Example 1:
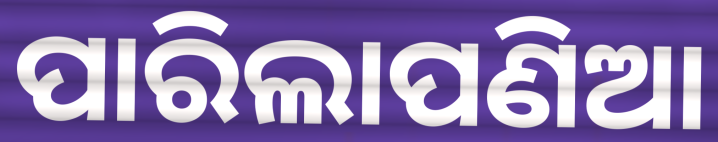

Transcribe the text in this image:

ପାରିଲାପଣିଆ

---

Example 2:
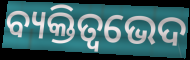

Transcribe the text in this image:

ବ୍ୟକ୍ତିତ୍ୱଭେଦ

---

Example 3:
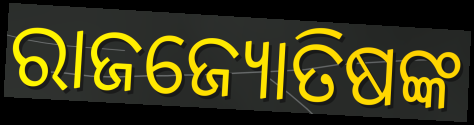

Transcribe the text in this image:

ରାଜଜ୍ୟୋତିଷଙ୍କ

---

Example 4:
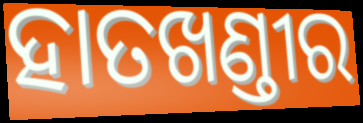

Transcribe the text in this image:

ହାତଖଣ୍ଡୀର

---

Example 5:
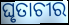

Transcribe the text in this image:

ଘୃତାଚୀର